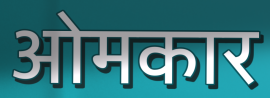
ओमकार